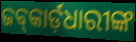
ଜବ୍‍କାର୍ଡ଼ଧାରୀଙ୍କ